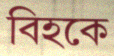
বিহকে